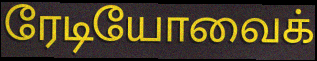
ரேடியோவைக்